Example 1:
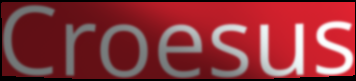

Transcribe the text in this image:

Croesus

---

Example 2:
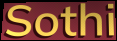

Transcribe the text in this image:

Sothi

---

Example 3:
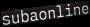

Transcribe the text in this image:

subaonline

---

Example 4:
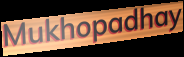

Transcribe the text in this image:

Mukhopadhay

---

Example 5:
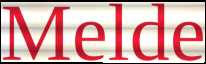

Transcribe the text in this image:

Melde